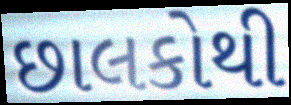
છાલકોથી